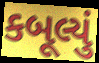
કબૂલ્યું